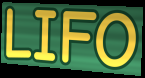
LIFO